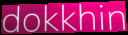
dokkhin